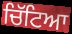
ਚਿੱਟਿਆ